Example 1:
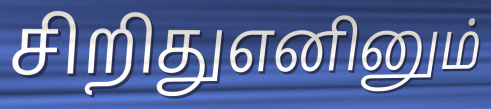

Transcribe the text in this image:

சிறிதுஎனினும்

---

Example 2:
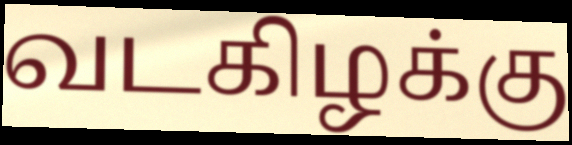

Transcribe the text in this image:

வடகிழக்கு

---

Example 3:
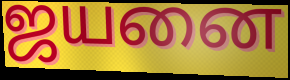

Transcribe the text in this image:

ஜயனை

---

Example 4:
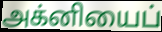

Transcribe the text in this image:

அக்னியைப்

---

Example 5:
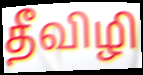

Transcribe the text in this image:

தீவிழி